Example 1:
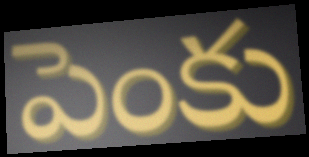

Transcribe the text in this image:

పెంకు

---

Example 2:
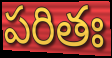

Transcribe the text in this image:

పరితః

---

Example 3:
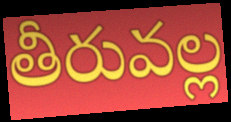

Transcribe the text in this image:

తీరువల్ల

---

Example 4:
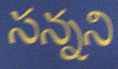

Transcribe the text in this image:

సన్నని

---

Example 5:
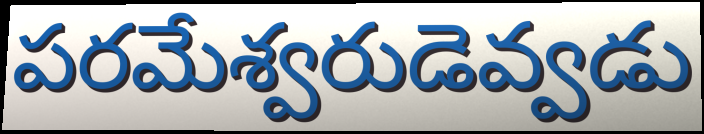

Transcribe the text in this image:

పరమేశ్వరుడెవ్వడు